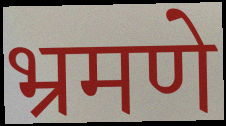
भ्रमणे